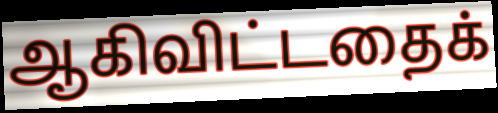
ஆகிவிட்டதைக்